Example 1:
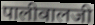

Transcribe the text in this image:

पालीवालजी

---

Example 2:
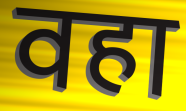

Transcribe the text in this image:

वहा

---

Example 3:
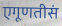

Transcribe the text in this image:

एगूणतीसं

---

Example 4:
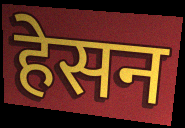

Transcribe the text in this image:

हेसन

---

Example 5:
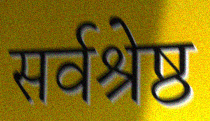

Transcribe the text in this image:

सर्वश्रेष्ठ